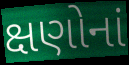
ક્ષણોનાં